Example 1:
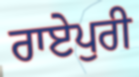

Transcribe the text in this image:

ਰਾਏਪੁਰੀ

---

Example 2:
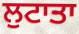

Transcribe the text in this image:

ਲੁਟਾਤਾ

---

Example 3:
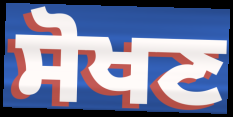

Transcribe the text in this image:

ਸੋਖਣ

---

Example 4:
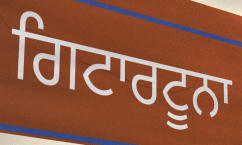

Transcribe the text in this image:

ਗਿਟਾਰਟੂਨਾ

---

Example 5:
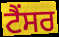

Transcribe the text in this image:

ਟੈਂਸਰ